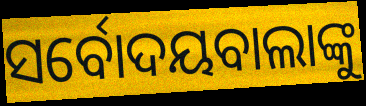
ସର୍ବୋଦୟବାଲାଙ୍କୁ